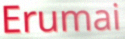
Erumai